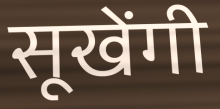
सूखेंगी